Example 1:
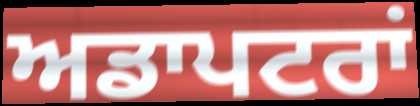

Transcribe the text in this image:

ਅਡਾਪਟਰਾਂ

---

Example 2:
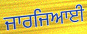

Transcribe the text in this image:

ਜਾਰਜਿਆਈ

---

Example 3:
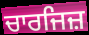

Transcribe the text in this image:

ਚਾਰਜਿਜ਼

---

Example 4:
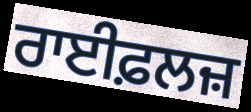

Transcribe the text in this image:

ਰਾਈਫ਼ਲਜ਼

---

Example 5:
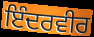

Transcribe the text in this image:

ਇੰਦਰਵੀਰ